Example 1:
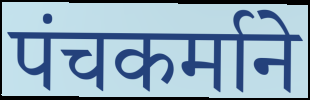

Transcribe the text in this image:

पंचकर्माने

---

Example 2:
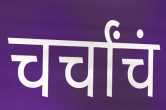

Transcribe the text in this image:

चर्चांचं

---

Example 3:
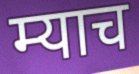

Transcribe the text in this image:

म्याच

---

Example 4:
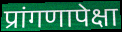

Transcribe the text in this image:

प्रांगणापेक्षा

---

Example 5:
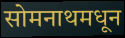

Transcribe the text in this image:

सोमनाथमधून